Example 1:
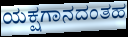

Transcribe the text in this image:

ಯಕ್ಷಗಾನದಂತಹ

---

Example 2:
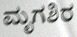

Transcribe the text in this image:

ಮೃಗಶಿರ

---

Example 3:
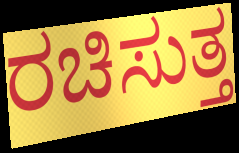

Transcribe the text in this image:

ರಚಿಸುತ್ತ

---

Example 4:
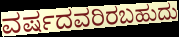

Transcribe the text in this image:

ವರ್ಷದವರಿರಬಹುದು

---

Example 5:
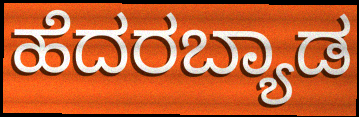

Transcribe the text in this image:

ಹೆದರಬ್ಯಾಡ